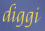
diggi